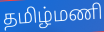
தமிழ்மணி